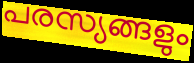
പരസ്യങ്ങളും